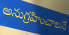
అనుగ్రహించాలనే